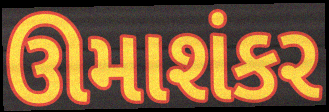
ઊમાશંકર